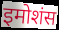
इमोशंस